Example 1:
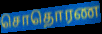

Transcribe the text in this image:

சொதொரண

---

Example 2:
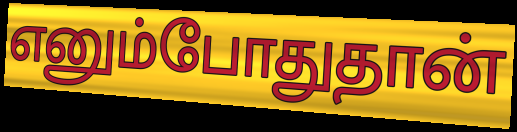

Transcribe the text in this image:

எனும்போதுதான்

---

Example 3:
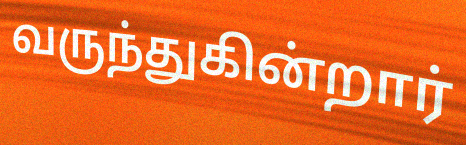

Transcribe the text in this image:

வருந்துகின்றார்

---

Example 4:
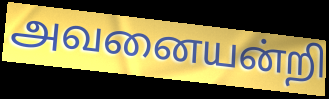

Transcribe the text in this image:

அவனையன்றி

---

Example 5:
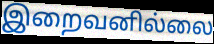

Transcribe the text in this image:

இறைவனில்லை